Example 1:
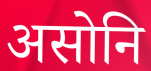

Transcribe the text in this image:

असोनि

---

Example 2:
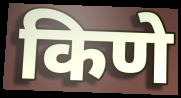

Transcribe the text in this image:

किणे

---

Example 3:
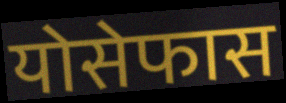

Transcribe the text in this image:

योसेफास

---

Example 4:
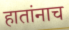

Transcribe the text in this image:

हातांनाच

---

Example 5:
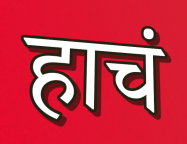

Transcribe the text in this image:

हाचं